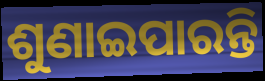
ଶୁଣାଇପାରନ୍ତି